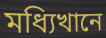
মধ্যিখানে